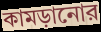
কামড়ানোর